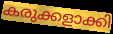
കരുക്കളാക്കി